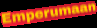
Emperumaan